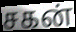
சகன்